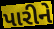
પારીને